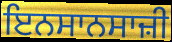
ਇਨਸਾਨਸਾਜ਼ੀ